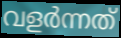
വളർന്നത്